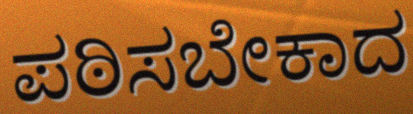
ಪಠಿಸಬೇಕಾದ